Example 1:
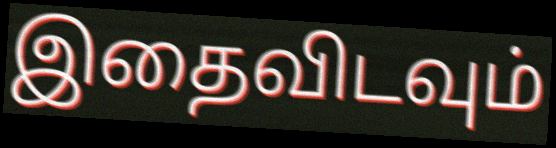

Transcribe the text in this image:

இதைவிடவும்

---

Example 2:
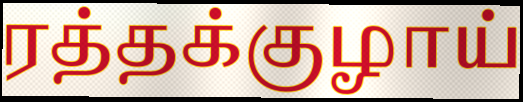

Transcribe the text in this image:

ரத்தக்குழாய்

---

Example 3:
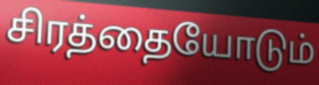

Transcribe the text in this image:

சிரத்தையோடும்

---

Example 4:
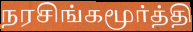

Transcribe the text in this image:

நரசிங்கமூர்த்தி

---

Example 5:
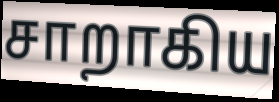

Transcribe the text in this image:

சாறாகிய